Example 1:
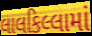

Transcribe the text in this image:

લાલકિલ્લામાં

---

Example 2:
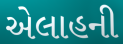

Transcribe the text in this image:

એલાહની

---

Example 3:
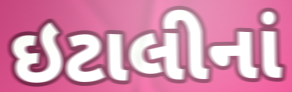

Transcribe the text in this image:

ઇટાલીનાં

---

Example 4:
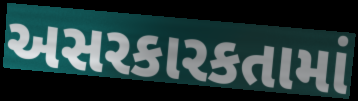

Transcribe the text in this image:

અસરકારકતામાં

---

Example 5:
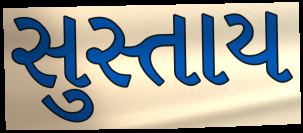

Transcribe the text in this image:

સુસ્તાય